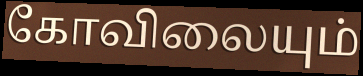
கோவிலையும்